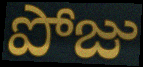
పోజు